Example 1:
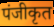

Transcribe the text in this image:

पंजीकृत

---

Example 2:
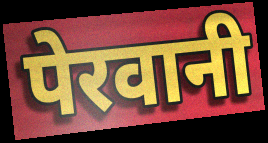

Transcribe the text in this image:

पेरवानी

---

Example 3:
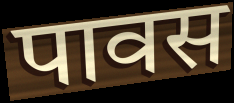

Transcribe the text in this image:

पावस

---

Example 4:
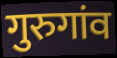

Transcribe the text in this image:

गुरुगांव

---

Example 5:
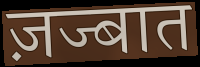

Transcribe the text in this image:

ज़ज्बात